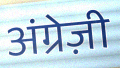
अंग्रेज़ी